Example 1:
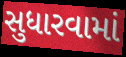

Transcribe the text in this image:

સુધારવામાં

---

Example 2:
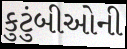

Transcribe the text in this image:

કુટુંબીઓની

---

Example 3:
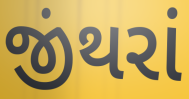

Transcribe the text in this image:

જીંથરાં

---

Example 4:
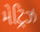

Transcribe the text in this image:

મેટ્રિઝ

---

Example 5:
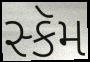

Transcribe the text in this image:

સ્કૅમ